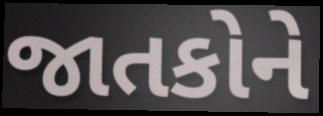
જાતકોને